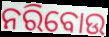
ନରିବୋଉ